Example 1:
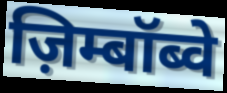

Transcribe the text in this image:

ज़िम्बॉब्वे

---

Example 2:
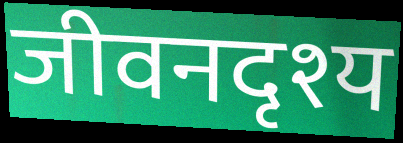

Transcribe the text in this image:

जीवनदृश्य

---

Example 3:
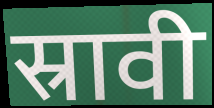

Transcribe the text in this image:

स्रावी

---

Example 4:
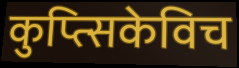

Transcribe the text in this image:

कुप्त्सिकेविच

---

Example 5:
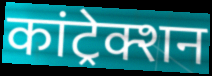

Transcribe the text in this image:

कांट्रेक्शन